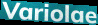
Variolae